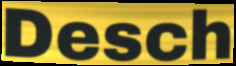
Desch